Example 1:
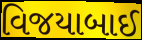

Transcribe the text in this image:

વિજયાબાઈ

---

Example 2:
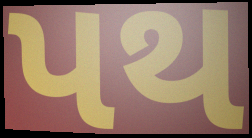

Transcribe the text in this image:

પથ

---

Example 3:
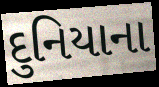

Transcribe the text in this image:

દુનિયાના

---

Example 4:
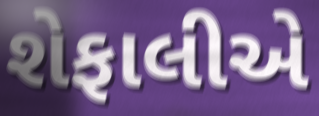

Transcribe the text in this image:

શેફાલીએ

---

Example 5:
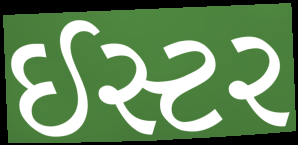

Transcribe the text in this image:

ઈસ્ટર